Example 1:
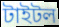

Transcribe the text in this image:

টাইটল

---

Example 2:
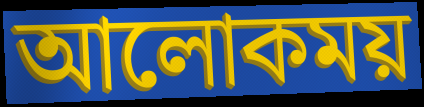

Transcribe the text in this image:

আলোকময়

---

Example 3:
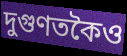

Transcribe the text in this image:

দুগুণতকৈও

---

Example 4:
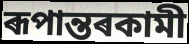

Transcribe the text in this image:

ৰূপান্তৰকামী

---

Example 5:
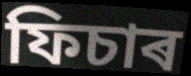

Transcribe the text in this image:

ফিচাৰ